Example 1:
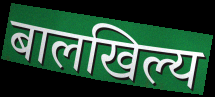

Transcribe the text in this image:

बालखिल्य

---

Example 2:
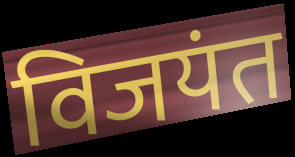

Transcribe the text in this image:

विजयंत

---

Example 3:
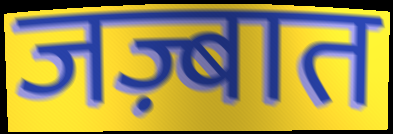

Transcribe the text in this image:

जज़्बात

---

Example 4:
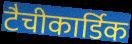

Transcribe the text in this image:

टैचीकार्डिक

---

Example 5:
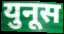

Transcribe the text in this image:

युनूस